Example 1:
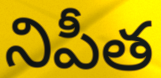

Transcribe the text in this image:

నిపీత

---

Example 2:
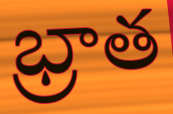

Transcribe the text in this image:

భ్రాత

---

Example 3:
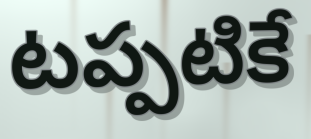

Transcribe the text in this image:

టప్పటికే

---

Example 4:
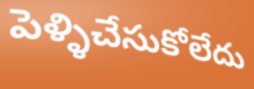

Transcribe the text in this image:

పెళ్ళిచేసుకోలేదు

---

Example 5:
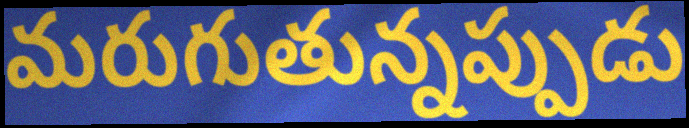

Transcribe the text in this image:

మరుగుతున్నప్పుడు